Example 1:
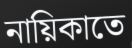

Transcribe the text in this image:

নায়িকাতে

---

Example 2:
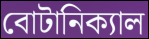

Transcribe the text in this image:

বোটানিক্যাল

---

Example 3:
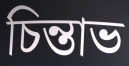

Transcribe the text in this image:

চিন্তাভ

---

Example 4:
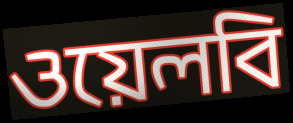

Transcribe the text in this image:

ওয়েলবি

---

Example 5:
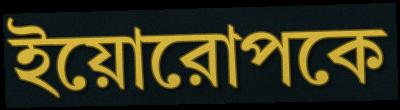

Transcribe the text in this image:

ইয়োরোপকে